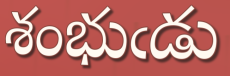
శంభుఁడు